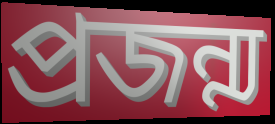
প্ৰজন্ম